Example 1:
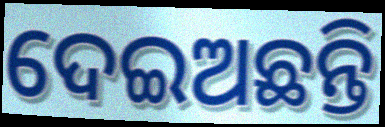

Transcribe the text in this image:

ଦେଇଅଛନ୍ତି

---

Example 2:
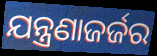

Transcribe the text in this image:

ଯନ୍ତ୍ରଣାଜର୍ଜର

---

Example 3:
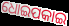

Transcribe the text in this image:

ଧୋଇପକାଇ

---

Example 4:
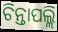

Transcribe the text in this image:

ଚିନ୍ତାପଲ୍ଲି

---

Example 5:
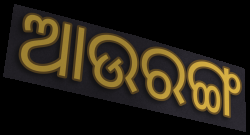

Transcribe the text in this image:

ଆଉରଙ୍ଗ